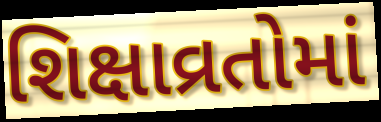
શિક્ષાવ્રતોમાં